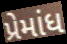
પ્રેમાંધ